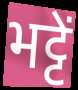
भट्टें